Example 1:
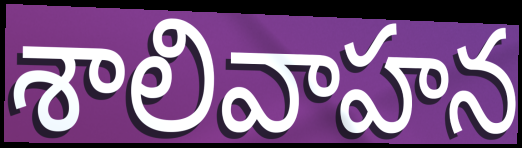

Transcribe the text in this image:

శాలివాహన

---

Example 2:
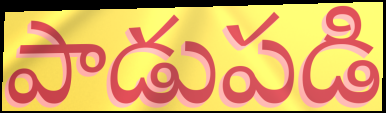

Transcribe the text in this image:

పాడుపడి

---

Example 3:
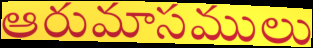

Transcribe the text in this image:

ఆరుమాసములు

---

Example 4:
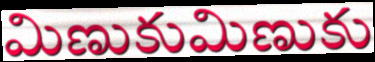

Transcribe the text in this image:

మిణుకుమిణుకు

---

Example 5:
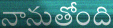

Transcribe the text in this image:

నానుతోంది